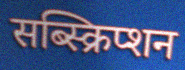
सब्स्क्रिप्शन